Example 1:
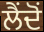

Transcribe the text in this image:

ਲੈਂਦੋਂ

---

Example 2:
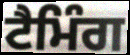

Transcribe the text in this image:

ਟੈਮਿੰਗ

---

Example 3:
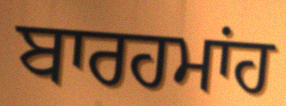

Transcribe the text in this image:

ਬਾਰਹਮਾਂਹ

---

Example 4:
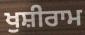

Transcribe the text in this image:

ਖੁਸ਼ੀਰਾਮ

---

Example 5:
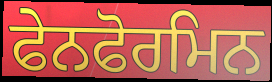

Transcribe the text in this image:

ਫੇਨਫੋਰਮਿਨ